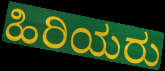
ಹಿರಿಯರು